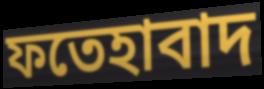
ফতেহাবাদ